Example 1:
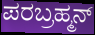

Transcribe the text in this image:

ಪರಬ್ರಹ್ಮನ್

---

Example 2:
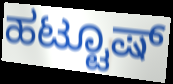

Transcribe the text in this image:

ಹಟ್ಟೂಷ್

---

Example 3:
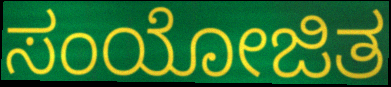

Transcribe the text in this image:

ಸಂಯೋಜಿತ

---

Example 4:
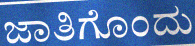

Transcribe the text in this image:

ಜಾತಿಗೊಂದು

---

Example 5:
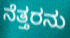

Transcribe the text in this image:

ನೆತ್ತರನು